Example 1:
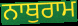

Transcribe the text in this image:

ਨਾਥੁਰਾਮ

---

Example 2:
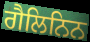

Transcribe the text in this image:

ਗੈਲਿਨਿਨ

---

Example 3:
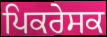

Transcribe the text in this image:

ਪਿਕਰੇਸਕ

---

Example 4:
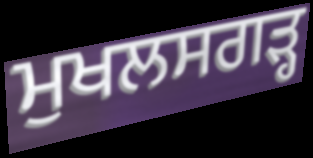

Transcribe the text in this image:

ਮੁਖਲਸਗੜ੍ਹ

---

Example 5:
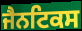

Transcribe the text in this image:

ਜੈਨਟਿਕਸ